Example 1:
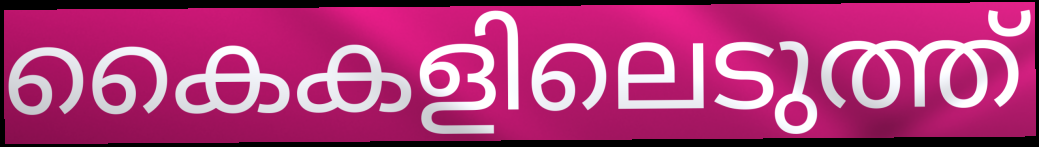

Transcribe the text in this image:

കൈകളിലെടുത്ത്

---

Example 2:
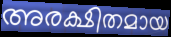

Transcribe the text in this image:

അരക്ഷിതമായ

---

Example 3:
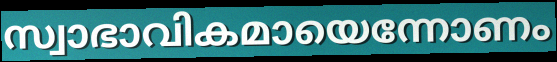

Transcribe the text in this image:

സ്വാഭാവികമായെന്നോണം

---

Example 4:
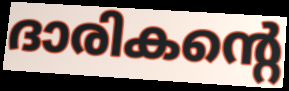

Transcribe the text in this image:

ദാരികന്റെ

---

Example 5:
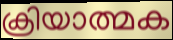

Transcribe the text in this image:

ക്രിയാത്മക